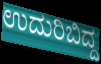
ಉದುರಿಬಿದ್ದ